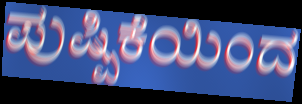
ಪುಷ್ಪಿಕೆಯಿಂದ